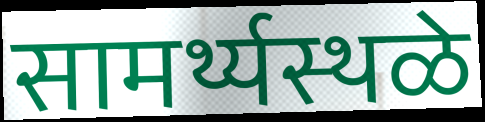
सामर्थ्यस्थळे